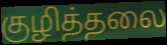
குழித்தலை